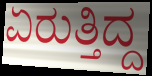
ಏರುತ್ತಿದ್ದ